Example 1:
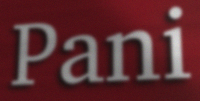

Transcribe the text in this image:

Pani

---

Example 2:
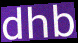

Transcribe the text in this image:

dhb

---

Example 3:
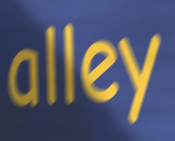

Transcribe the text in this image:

alley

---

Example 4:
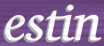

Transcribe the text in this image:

estin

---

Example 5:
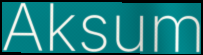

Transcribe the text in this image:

Aksum